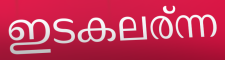
ഇടകലര്ന്ന